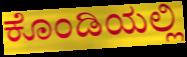
ಕೊಂಡಿಯಲ್ಲಿ